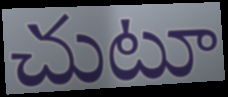
చుటూ